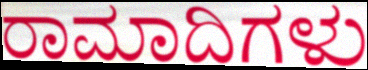
ರಾಮಾದಿಗಳು